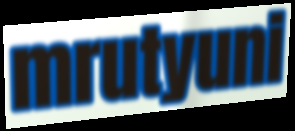
mrutyuni